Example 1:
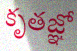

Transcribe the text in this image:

కృతజ్ఞో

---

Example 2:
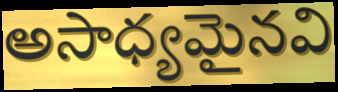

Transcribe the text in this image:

అసాధ్యమైనవి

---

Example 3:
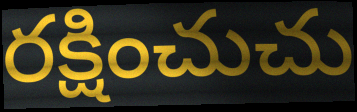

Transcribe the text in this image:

రక్షించుచు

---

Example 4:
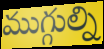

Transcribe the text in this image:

ముగ్గుల్ని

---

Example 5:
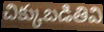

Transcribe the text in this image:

చిక్కుబడితివి